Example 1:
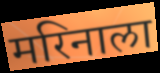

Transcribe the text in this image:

मरिनाला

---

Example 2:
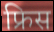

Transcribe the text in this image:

फ्रिस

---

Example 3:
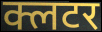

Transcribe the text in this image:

क्लटर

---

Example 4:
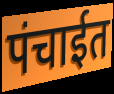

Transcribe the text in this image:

पंचाईत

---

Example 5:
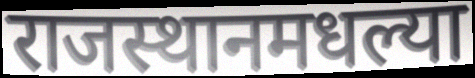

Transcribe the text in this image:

राजस्थानमधल्या